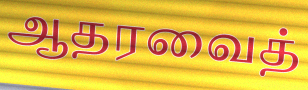
ஆதரவைத்